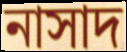
নাসাদ